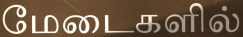
மேடைகளில்